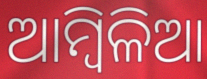
ଆମ୍ୱିଳିଆ